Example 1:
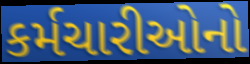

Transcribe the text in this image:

કર્મચારીઓનો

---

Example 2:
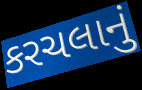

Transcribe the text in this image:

કરચલાનું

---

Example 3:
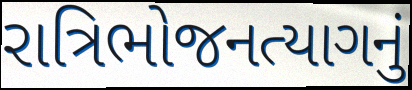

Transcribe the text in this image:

રાત્રિભોજનત્યાગનું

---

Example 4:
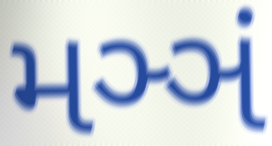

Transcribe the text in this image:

મઞ્ઞં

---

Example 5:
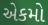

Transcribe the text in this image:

એકમો